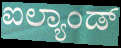
ಐಲ್ಯಾಂಡ್